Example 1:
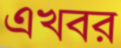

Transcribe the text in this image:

এখবর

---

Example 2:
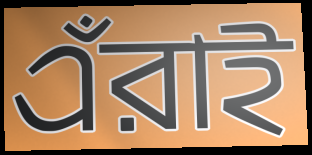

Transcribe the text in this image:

এঁরাই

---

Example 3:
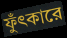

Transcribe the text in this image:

ফুঁৎকারে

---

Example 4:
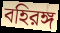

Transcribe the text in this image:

বহিরঙ্গ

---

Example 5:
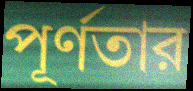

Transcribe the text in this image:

পূর্ণতার